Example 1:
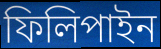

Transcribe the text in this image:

ফিলিপাইন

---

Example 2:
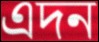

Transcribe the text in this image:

এদন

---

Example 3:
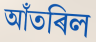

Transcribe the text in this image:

আঁতৰিল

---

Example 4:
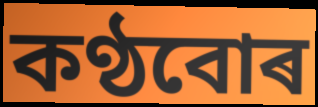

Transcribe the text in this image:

কণ্ঠবোৰ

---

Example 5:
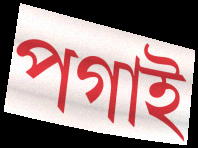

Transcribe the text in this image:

পগাই